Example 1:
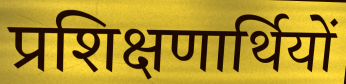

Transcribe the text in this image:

प्रशिक्षणार्थियों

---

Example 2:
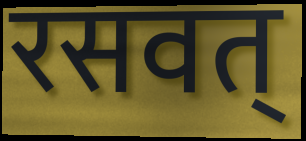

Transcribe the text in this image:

रसवत्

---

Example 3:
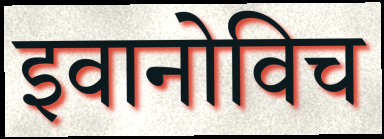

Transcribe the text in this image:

इवानोविच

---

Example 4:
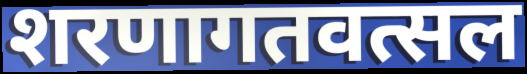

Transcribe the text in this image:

शरणागतवत्सल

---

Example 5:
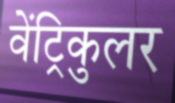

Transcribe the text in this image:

वेंट्रिकुलर